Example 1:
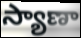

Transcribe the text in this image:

స్యాణా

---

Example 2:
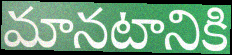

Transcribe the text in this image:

మానటానికి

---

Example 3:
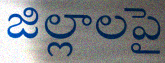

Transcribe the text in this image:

జిల్లాలపై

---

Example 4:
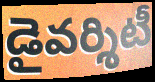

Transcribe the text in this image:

డైవర్శిటీ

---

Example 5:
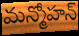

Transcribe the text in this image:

మన్మోహన్